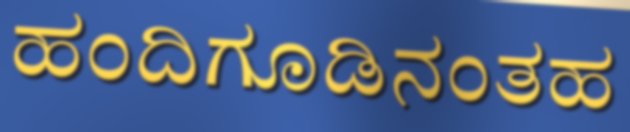
ಹಂದಿಗೂಡಿನಂತಹ